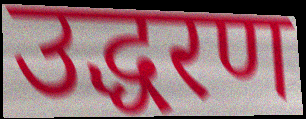
उद्धरण